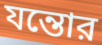
যন্তোর